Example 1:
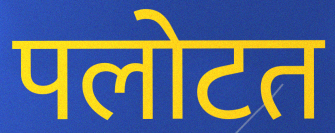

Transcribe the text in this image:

पलोटत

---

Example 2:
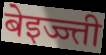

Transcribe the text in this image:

बेइज्ज्ती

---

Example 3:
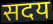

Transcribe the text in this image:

सदय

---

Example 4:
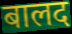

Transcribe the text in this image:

बालद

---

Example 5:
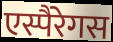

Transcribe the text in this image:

एस्पैरेगस